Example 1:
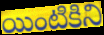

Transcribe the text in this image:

యింటికిని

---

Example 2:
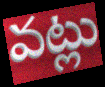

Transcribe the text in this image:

వట్లు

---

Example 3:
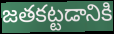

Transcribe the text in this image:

జతకట్టడానికి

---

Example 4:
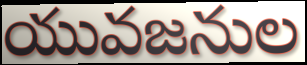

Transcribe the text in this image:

యువజనుల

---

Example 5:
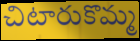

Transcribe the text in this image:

చిటారుకొమ్మ